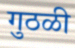
गुठळी